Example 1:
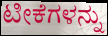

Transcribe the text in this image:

ಟೀಕೆಗಳನ್ನು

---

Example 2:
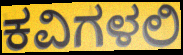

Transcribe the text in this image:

ಕವಿಗಳಲಿ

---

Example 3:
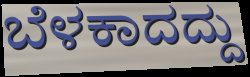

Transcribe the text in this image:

ಬೆಳಕಾದದ್ದು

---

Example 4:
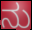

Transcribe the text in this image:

ನು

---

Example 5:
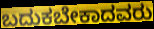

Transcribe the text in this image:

ಬದುಕಬೇಕಾದವರು